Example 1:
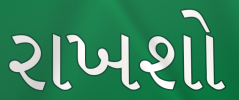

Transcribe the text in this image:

રાખશો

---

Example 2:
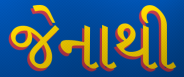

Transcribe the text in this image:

જેનાથી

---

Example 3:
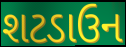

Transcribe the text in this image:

શટડાઉન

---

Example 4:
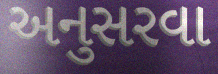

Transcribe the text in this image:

અનુસરવા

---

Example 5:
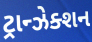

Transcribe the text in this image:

ટ્રાન્ઝેક્શન